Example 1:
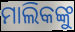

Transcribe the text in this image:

ମାଲିକଙ୍କୁ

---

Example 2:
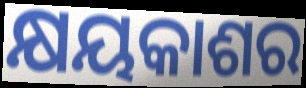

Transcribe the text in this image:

କ୍ଷୟକାଶର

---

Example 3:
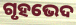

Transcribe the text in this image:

ଗୃହଭେଦ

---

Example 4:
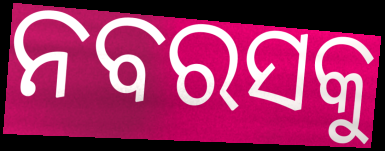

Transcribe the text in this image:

ନବରସକୁ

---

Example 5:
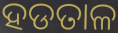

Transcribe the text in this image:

ହଡତାଳ